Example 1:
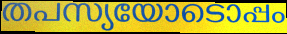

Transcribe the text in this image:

തപസ്യയോടൊപ്പം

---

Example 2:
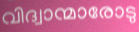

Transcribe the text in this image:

വിദ്വാന്മാരോടു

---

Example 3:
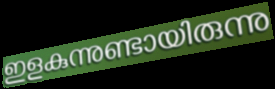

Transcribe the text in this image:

ഇളകുന്നുണ്ടായിരുന്നു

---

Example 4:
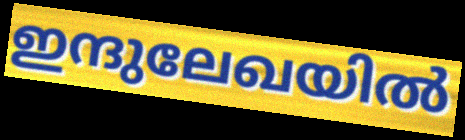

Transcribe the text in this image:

ഇന്ദുലേഖയിൽ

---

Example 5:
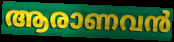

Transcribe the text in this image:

ആരാണവൻ